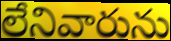
లేనివారును